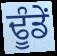
ਢੂੰਡੇਂ